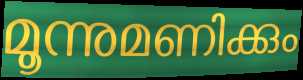
മൂന്നുമണിക്കും